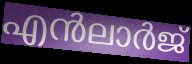
എൻലാർജ്